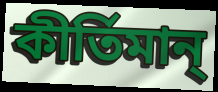
কীর্তিমান্